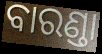
ବାରଣ୍ଡା